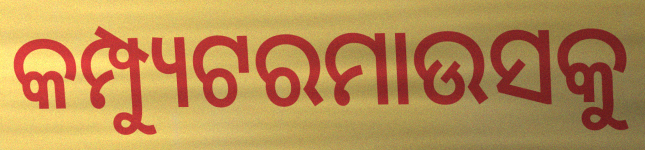
କମ୍ପ୍ୟୁଟରମାଉସକୁ